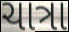
ચાત્રા